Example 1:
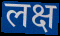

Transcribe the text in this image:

लक्ष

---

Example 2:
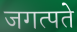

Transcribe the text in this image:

जगत्पते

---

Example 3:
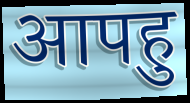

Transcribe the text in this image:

आपहु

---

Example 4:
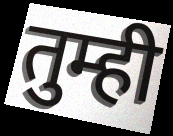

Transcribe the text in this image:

तुम्ही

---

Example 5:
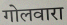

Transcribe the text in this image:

गोलवारा